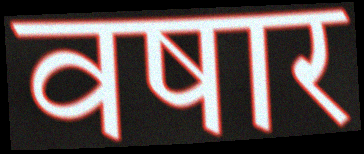
वषार